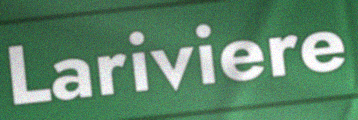
Lariviere